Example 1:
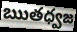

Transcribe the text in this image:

ఋతధ్వజ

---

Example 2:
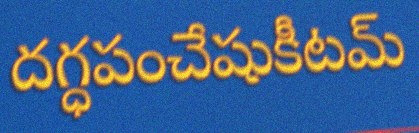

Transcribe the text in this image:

దగ్ధపంచేషుకీటమ్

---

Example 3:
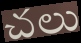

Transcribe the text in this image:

చలు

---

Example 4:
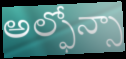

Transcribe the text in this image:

అల్ఫోన్సా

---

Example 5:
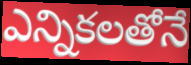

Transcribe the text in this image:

ఎన్నికలతోనే